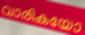
വാരികയോ